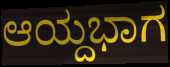
ಆಯ್ದಭಾಗ